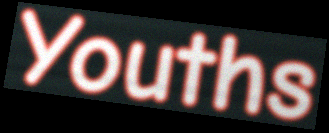
Youths